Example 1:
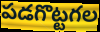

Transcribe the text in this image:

పడగొట్టగల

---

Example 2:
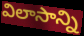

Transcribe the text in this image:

విలాసాన్ని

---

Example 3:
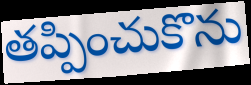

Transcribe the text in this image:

తప్పించుకొను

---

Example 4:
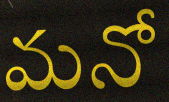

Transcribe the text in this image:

మనో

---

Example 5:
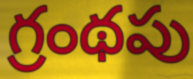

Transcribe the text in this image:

గ్రంథపు